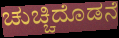
ಚುಚ್ಚಿದೊಡನೆ